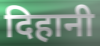
दिहानी